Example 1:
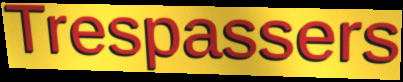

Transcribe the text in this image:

Trespassers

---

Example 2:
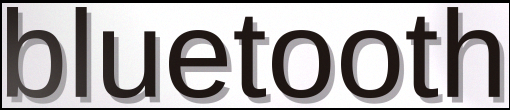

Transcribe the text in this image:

bluetooth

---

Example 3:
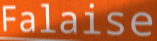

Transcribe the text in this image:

Falaise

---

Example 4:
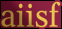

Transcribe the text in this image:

aiisf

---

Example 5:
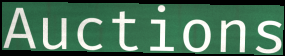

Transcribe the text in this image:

Auctions